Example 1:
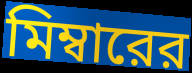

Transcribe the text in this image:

মিম্বারের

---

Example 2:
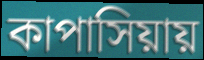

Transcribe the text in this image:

কাপাসিয়ায়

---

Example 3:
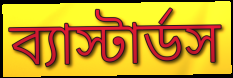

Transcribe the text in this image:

ব্যাস্টার্ডস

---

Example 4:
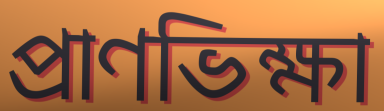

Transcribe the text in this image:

প্রাণভিক্ষা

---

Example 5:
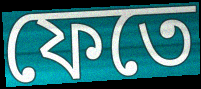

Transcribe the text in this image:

ফেতে